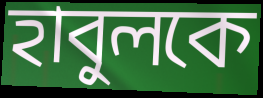
হাবুলকে